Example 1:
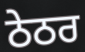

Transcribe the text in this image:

ਠੇਠਰ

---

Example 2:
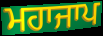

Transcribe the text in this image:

ਮਹਾਜਾਪ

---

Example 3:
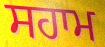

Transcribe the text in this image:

ਸਹਾਮ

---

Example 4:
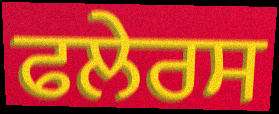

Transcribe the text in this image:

ਫਲੇਰਸ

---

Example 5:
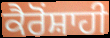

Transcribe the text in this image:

ਕੈਰੋਂਸ਼ਾਹੀ